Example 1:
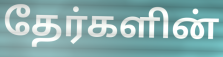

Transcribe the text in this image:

தேர்களின்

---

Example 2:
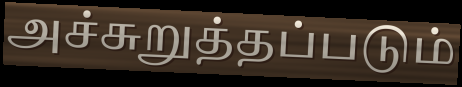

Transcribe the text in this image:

அச்சுறுத்தப்படும்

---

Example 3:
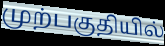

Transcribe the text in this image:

முற்பகுதியில்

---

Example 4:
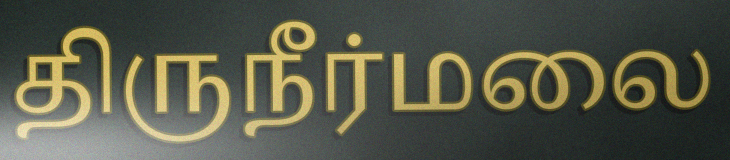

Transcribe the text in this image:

திருநீர்மலை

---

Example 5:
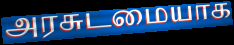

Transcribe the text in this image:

அரசுடமையாக